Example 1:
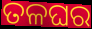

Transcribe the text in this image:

ତଳଘର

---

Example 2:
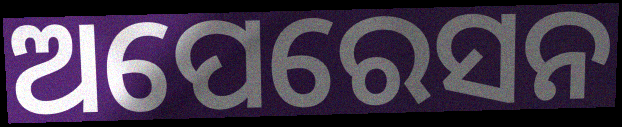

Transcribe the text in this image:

ଅପେରେସନ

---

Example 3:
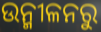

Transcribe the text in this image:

ଉନ୍ମୀଳନରୁ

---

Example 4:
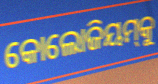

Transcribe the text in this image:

କୋଲୋଜିୟମ୍‍କୁ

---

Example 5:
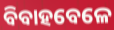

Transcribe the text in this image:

ବିବାହବେଳେ